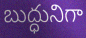
బుద్ధునిగా